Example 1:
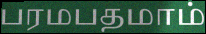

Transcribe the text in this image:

பரமபதமாம்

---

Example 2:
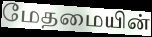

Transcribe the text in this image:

மேதமையின்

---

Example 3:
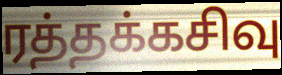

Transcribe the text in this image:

ரத்தக்கசிவு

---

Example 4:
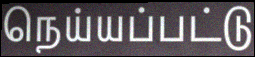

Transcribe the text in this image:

நெய்யப்பட்டு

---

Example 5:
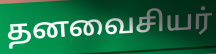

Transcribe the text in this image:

தனவைசியர்